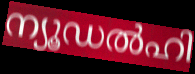
ന്യൂഡൽഹി